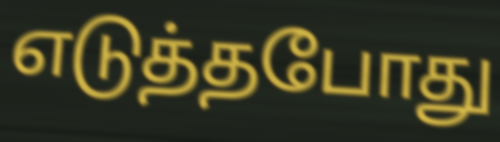
எடுத்தபோது